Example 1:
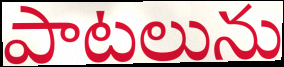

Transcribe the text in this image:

పాటలును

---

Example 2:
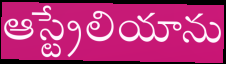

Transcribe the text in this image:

ఆస్ట్రేలియాను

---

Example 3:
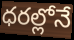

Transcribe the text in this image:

ధరల్లోనే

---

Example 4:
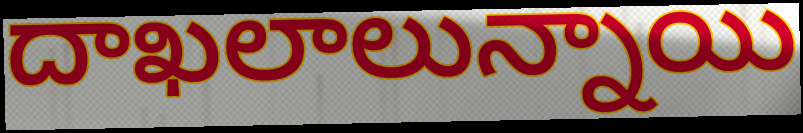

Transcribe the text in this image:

దాఖలాలున్నాయి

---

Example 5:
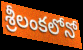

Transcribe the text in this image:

శ్రీలంకలోనో